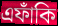
এফাঁকি